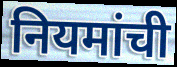
नियमांची